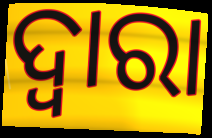
ଦ୍ବାରା